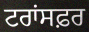
ਟਰਾਂਸਫ਼ਰ